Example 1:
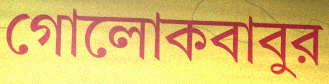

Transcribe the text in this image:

গোলোকবাবুর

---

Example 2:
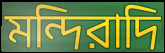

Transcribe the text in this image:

মন্দিরাদি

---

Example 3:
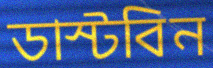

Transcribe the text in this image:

ডাস্টবিন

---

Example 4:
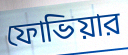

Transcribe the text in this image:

ফোভিয়ার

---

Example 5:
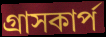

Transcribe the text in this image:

গ্রাসকার্প